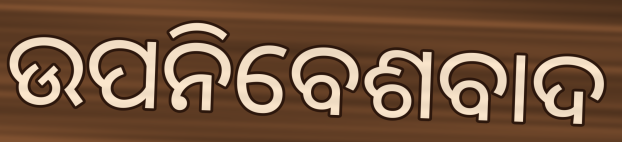
ଉପନିବେଶବାଦ